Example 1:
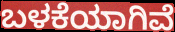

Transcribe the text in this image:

ಬಳಕೆಯಾಗಿವೆ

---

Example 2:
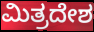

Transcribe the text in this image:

ಮಿತ್ರದೇಶ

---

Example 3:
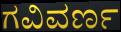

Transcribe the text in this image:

ಗವಿವರ್ಣ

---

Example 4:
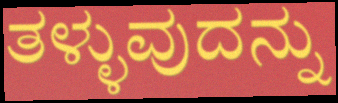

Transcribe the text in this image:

ತಳ್ಳುವುದನ್ನು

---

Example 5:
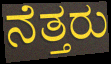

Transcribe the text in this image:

ನೆತ್ತರು